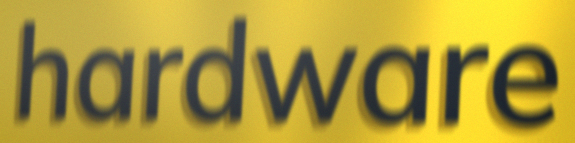
hardware